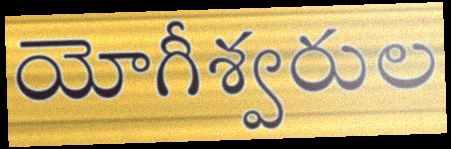
యోగీశ్వరుల